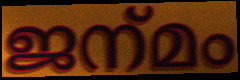
ജന്‌മം